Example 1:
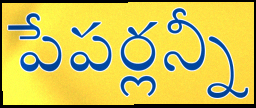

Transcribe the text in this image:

పేపర్లన్నీ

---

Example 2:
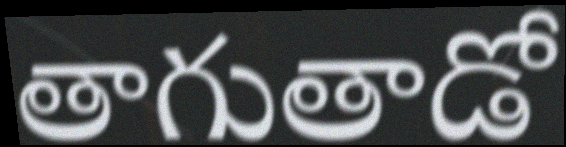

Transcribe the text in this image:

తాగుతాడో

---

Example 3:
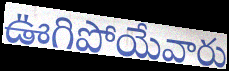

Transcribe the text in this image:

ఊగిపోయేవారు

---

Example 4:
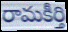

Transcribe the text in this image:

రామకీర్తి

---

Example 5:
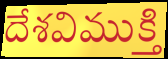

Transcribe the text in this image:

దేశవిముక్తి